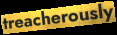
treacherously